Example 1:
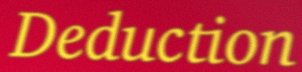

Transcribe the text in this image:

Deduction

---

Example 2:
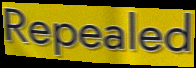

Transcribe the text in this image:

Repealed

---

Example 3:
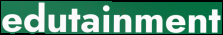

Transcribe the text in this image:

edutainment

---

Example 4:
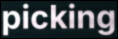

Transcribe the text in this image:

picking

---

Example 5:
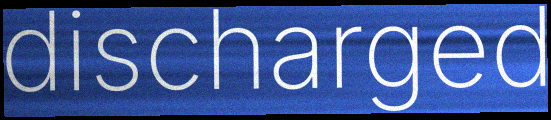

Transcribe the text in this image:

discharged